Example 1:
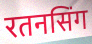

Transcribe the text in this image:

रतनसिंग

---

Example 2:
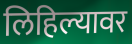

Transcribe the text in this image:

लिहिल्यावर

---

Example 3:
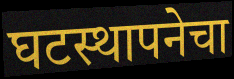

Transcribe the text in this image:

घटस्थापनेचा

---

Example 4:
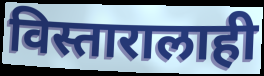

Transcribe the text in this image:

विस्तारालाही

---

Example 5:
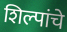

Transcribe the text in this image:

शिल्पांचे